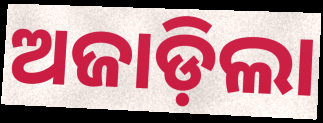
ଅଜାଡ଼ିଲା